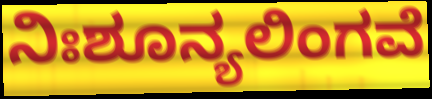
ನಿಃಶೂನ್ಯಲಿಂಗವೆ